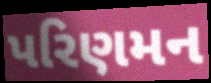
પરિણમન